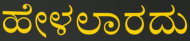
ಹೇಳಲಾರದು